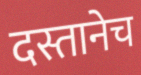
दस्तानेच